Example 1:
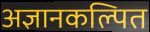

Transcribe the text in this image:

अज्ञानकल्पित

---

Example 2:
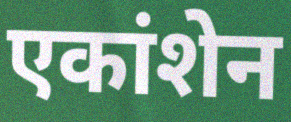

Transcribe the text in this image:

एकांशेन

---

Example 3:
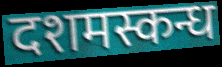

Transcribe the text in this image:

दशमस्कन्ध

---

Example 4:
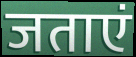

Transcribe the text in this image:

जताएं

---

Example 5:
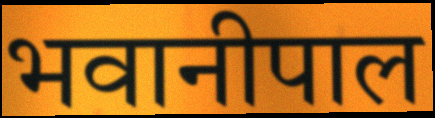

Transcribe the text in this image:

भवानीपाल